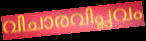
വിചാരവിപ്ലവം